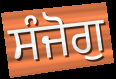
ਸੰਜੋਗੁ